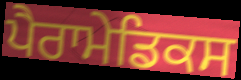
ਪੈਰਾਮੇਡਿਕਸ